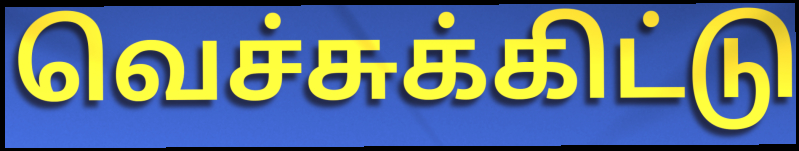
வெச்சுக்கிட்டு